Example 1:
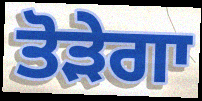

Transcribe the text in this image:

ਤੋੜੇਗਾ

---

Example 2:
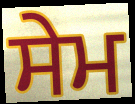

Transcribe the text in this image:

ਸੇਮ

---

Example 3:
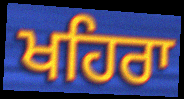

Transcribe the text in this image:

ਖਹਿਰਾ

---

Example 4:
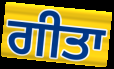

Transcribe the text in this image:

ਗੀਤਾ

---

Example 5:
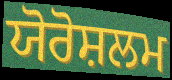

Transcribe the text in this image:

ਯੋਰੋਸ਼ਲਮ